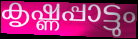
കൃഷ്ണപ്പാട്ടും